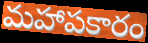
మహాపకారం